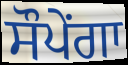
ਸੌਪੇਂਗਾ